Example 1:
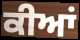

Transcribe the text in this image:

ਕੀਆਂ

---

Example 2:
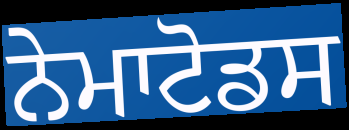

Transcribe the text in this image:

ਨੇਮਾਟੋਡਸ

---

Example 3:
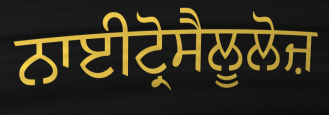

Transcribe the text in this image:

ਨਾਈਟ੍ਰੋਸੈਲੂਲੋਜ਼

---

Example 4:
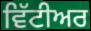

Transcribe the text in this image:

ਵਿੱਟੀਅਰ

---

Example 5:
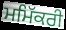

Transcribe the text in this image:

ਮਮਿੱਕਰੀ